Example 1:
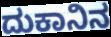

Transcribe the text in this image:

ದುಕಾನಿನ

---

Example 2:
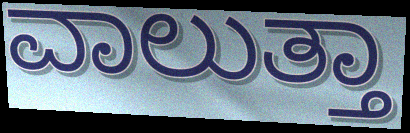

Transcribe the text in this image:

ವಾಲುತ್ತಾ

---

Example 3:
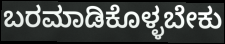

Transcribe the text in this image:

ಬರಮಾಡಿಕೊಳ್ಳಬೇಕು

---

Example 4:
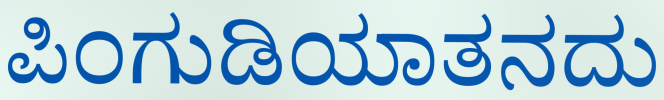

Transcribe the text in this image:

ಪಿಂಗುಡಿಯಾತನದು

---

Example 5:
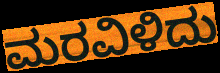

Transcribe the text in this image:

ಮರವಿಳಿದು